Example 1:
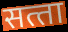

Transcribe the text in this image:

सत्‍ता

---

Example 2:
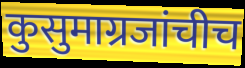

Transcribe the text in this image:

कुसुमाग्रजांचीच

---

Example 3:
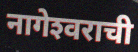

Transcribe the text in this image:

नागेश्‍वराची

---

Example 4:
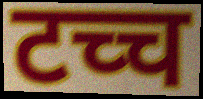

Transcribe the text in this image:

टच्च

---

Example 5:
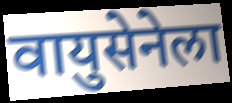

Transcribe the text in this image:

वायुसेनेला